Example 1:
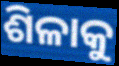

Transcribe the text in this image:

ଶିଳାକୁ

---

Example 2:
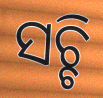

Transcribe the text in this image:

ସଚ୍ଚି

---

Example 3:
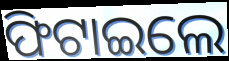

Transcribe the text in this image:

ଫିଟାଇଲେ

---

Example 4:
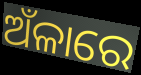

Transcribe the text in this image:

ଅଁଳାରେ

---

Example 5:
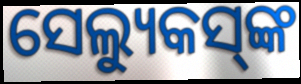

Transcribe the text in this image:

ସେଲ୍ୟୁକସ୍‌ଙ୍କ